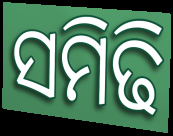
ସମିଢି